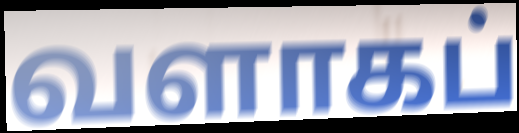
வளாகப்